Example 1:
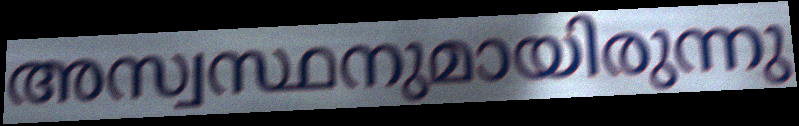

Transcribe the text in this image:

അസ്വസ്ഥനുമായിരുന്നു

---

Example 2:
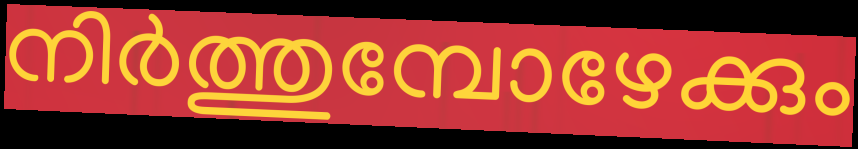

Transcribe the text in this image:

നിർത്തുമ്പോഴേക്കും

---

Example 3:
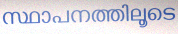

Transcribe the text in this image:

സ്ഥാപനത്തിലൂടെ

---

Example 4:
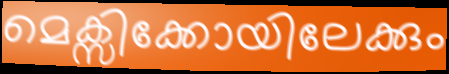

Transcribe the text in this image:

മെക്സിക്കോയിലേക്കും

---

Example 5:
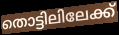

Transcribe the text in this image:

തൊട്ടിലിലേക്ക്